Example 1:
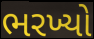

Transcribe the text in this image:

ભરખ્યો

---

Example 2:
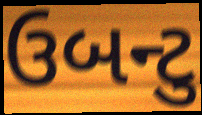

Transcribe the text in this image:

ઉબન્ટુ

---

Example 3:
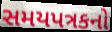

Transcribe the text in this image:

સમયપત્રકનો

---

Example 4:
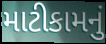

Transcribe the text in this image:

માટીકામનું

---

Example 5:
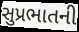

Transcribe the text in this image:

સુપ્રભાતની